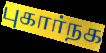
புகார்நக